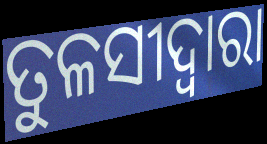
ତୁଳସୀଦ୍ବାରା